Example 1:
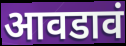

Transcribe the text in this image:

आवडावं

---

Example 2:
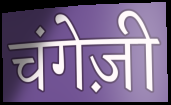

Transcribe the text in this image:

चंगेज़ी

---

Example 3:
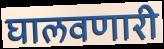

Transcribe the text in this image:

घालवणारी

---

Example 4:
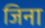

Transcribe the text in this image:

जिना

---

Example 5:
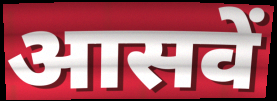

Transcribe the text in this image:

आसवें